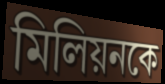
মিলিয়নকে